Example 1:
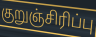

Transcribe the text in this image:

குறுஞ்சிரிப்பு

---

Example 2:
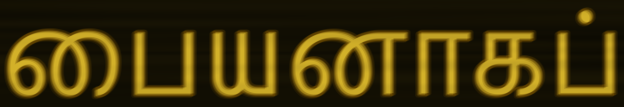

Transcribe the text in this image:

பையனாகப்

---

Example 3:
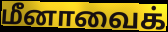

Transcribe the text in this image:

மீனாவைக்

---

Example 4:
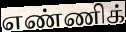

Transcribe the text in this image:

எண்ணிக்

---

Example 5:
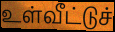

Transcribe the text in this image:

உள்வீட்டுச்